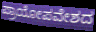
ಪ್ರಾಯೋಪವೇಶದ